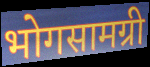
भोगसामग्री